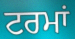
ਟਰਮਾਂ